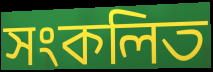
সংকলিত